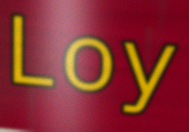
Loy